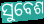
ସୁବେଶ